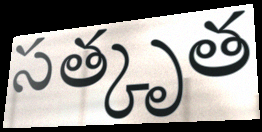
సత్కృత